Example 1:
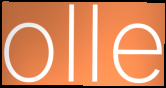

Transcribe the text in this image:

olle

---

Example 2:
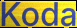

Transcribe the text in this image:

Koda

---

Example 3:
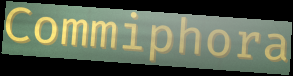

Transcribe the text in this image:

Commiphora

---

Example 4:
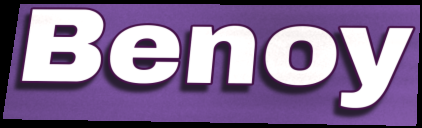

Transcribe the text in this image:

Benoy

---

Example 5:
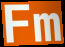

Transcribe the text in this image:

Fm